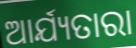
ଆର୍ଯ୍ୟତାରା